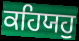
ਕਹਿਯਹੁ